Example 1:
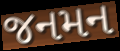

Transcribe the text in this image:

જનમન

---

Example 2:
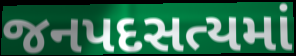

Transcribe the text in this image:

જનપદસત્યમાં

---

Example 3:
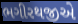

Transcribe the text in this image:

ભગીરથજીએ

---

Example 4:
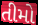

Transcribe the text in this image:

તીમો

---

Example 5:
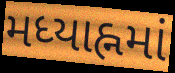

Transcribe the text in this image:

મધ્યાહ્નમાં